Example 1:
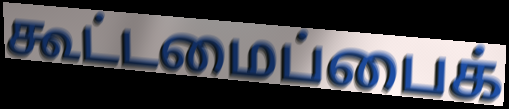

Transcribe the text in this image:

கூட்டமைப்பைக்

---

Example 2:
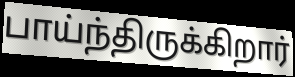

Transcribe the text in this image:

பாய்ந்திருக்கிறார்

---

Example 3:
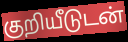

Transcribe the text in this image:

குறியீடுடன்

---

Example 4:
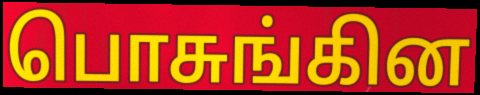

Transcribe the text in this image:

பொசுங்கின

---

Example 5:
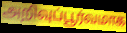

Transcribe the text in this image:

அறிவுப்பூர்வமாக